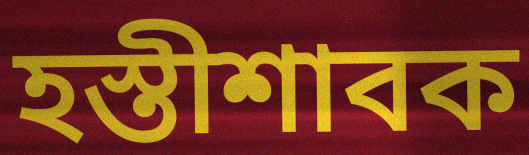
হস্তীশাবক